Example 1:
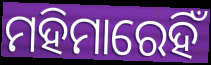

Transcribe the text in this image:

ମହିମାରେହିଁ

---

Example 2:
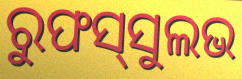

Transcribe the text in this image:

ରୁଫସ୍‌ସୁଲଭ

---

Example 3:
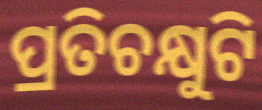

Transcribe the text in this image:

ପ୍ରତିଚକ୍ଷୁଟି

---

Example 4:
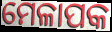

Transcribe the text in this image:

ମେଳାପକ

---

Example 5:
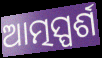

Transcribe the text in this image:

ଆତ୍ମସ୍ପର୍ଶ